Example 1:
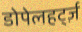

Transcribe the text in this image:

डोपेलहर्ट्ज़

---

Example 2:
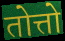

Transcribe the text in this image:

तोत्तो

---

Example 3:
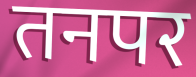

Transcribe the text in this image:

तनपर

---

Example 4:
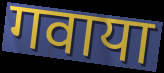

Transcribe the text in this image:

गवाया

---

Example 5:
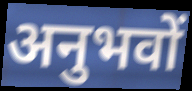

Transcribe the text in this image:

अनुभवों